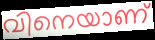
വിനെയാണ്